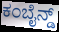
ಕಂಬೈನ್ಡ್